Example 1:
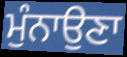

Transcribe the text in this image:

ਮੁੰਨਾਉਣਾ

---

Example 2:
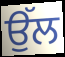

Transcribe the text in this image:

ਉੱਲ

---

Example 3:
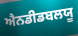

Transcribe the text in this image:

ਐਨਡੀਡਬਲਯੂ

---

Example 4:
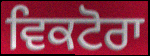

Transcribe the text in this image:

ਵਿਕਟੋਰਾ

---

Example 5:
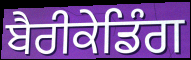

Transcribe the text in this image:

ਬੈਰੀਕੇਡਿੰਗ